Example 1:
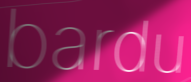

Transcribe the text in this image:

bardu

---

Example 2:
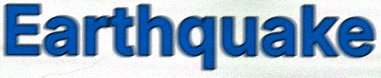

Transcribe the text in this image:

Earthquake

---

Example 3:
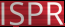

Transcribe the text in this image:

ISPR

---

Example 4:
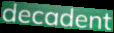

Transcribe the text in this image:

decadent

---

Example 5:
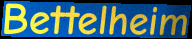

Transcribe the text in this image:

Bettelheim